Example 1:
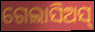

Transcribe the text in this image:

ଗେଲାସିଅସ୍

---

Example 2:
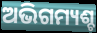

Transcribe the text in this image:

ଅଭିଗମ୍ୟଶ୍ଚ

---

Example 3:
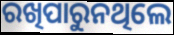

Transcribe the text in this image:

ରଖିପାରୁନଥିଲେ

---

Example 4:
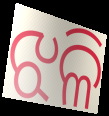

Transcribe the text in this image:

ଝଳି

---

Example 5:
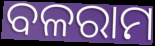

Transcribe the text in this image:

ବଳରାମ